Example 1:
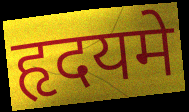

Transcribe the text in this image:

हृदयमे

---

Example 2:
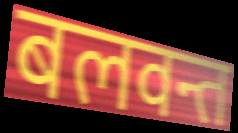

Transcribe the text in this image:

बलवन्त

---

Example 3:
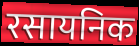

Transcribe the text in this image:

रसायनिक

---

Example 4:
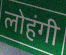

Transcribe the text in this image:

लोहंगी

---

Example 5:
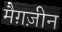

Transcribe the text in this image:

मैग़ज़ीन